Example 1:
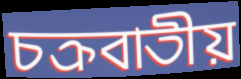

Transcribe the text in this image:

চক্রবাতীয়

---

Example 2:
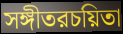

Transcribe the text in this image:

সঙ্গীতরচয়িতা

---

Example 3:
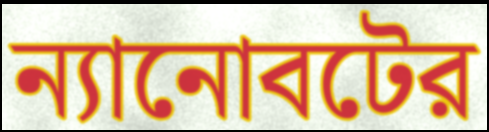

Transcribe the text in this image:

ন্যানোবটের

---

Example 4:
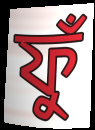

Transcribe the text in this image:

ফুঁ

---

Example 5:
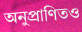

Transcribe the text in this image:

অনুপ্রাণিতও